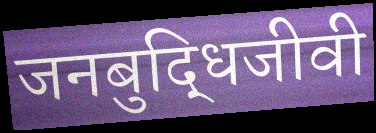
जनबुद्धिजीवी